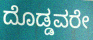
ದೊಡ್ಡವರೇ